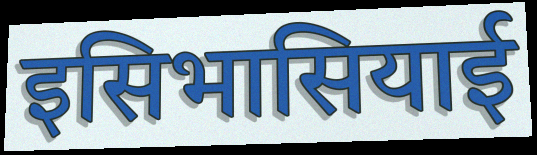
इसिभासियाई